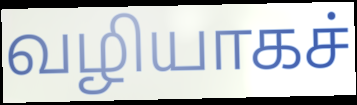
வழியாகச்